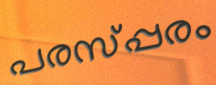
പരസ്പ്പരം